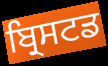
ਬ੍ਰਿਸਟਡ